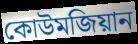
কোউমজিয়ান